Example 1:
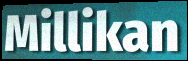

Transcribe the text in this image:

Millikan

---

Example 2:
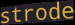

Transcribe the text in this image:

strode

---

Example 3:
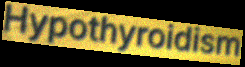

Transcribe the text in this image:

Hypothyroidism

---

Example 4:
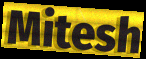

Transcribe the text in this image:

Mitesh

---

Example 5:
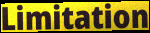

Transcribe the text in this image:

Limitation